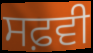
ਸਫ਼ਵੀ